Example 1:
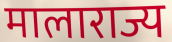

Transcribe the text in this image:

मालाराज्य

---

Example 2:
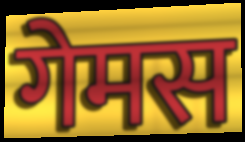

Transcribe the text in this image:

गेमस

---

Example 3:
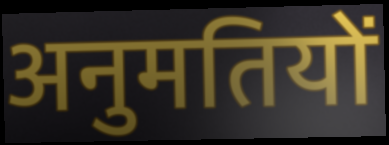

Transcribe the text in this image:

अनुमतियों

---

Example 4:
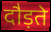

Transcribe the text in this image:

दौड़ते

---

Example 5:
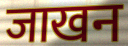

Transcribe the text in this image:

जाखन